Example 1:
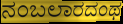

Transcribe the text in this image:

ನಂಬಲಾರದಂಥ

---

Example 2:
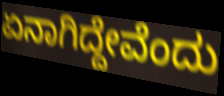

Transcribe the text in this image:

ಏನಾಗಿದ್ದೇವೆಂದು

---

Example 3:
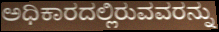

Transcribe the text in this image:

ಅಧಿಕಾರದಲ್ಲಿರುವವರನ್ನು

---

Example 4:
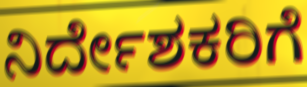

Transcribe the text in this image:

ನಿರ್ದೇಶಕರಿಗೆ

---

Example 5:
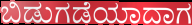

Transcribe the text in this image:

ಬಿಡುಗಡೆಯಾದಾಗ